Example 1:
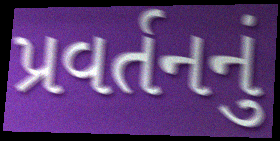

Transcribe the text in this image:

પ્રવર્તનનું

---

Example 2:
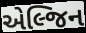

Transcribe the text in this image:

એલ્જિન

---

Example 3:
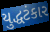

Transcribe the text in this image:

યુદ્ધટંકાર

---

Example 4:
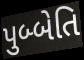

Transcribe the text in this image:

પુબ્બેતિ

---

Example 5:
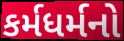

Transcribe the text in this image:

કર્મધર્મનો